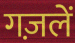
गज़लें